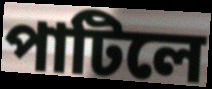
পাটিলে